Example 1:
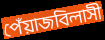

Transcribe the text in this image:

পেঁয়াজবিলাসী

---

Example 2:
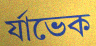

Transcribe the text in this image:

র্যাভেক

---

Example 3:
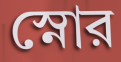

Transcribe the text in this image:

স্নোর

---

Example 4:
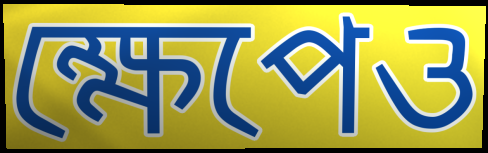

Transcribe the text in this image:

ক্ষেপেও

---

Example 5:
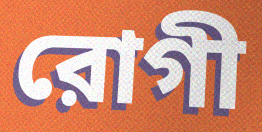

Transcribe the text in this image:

রোগী